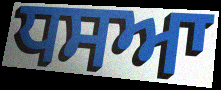
ਧਸਆ